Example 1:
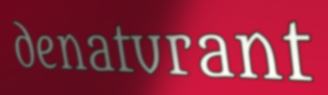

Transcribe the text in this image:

denaturant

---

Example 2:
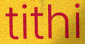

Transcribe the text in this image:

tithi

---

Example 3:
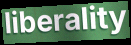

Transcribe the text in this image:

liberality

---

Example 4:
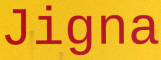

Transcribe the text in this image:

Jigna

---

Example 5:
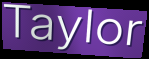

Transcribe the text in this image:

Taylor